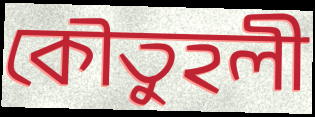
কৌতুহলী